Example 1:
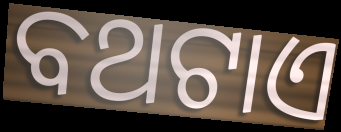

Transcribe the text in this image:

ବଥଟାଏ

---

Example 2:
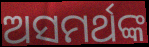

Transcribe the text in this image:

ଅସମର୍ଥଙ୍କ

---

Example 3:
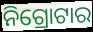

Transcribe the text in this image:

ନିଗ୍ରୋଟାର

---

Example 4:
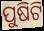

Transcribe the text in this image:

ପୁଷିଟି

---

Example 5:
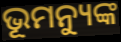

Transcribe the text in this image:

ଭୂମନ୍ୟୁଙ୍କ